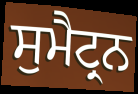
ਸੁਮੈਟ੍ਰਨ